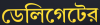
ডেলিগেটের